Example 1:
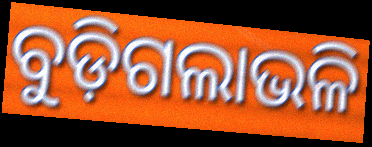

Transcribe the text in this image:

ବୁଡ଼ିଗଲାଭଳି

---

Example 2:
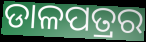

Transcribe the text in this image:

ଡାଳପତ୍ରର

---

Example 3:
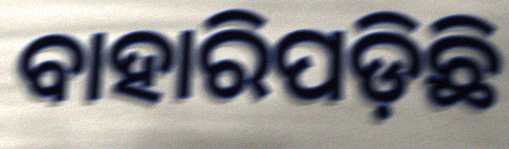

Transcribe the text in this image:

ବାହାରିପଡ଼ିଛି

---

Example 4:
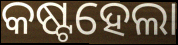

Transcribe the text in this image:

କଷ୍ଟହେଲା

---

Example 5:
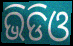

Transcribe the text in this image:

ଭିଡିଓ